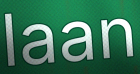
laan